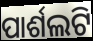
ପାର୍ଶଲଟି